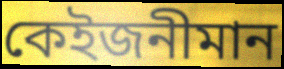
কেইজনীমান